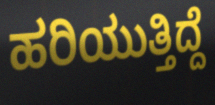
ಹರಿಯುತ್ತಿದ್ದೆ